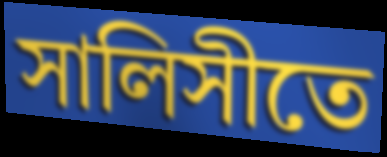
সালিসীতে